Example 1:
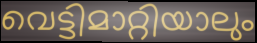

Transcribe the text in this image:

വെട്ടിമാറ്റിയാലും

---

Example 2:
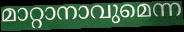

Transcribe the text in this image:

മാറ്റാനാവുമെന്ന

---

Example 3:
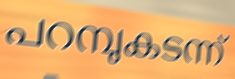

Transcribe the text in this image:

പറമ്പുകടന്ന്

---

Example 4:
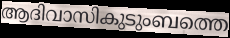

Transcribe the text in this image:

ആദിവാസികുടുംബത്തെ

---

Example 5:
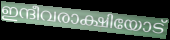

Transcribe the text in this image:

ഇന്ദീവരാക്ഷിയോട്